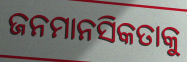
ଜନମାନସିକତାକୁ